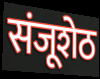
संजूशेठ